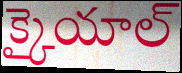
క్కైయాల్